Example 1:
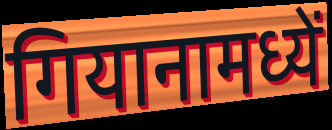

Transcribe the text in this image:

गियानामध्यें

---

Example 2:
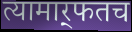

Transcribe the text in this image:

त्यामार्फतच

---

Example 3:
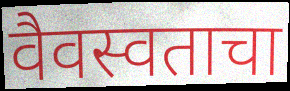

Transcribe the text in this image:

वैवस्वताचा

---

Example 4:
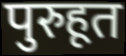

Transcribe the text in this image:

पुरुहूत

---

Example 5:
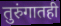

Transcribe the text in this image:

तुरुंगातही